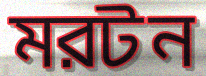
মরটন